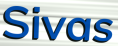
Sivas